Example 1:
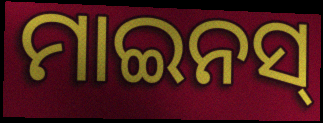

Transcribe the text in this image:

ମାଇନସ୍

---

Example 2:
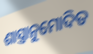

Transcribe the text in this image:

ଶାସ୍ତ୍ରାନୁମୋଦିତ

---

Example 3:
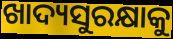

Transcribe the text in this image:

ଖାଦ୍ୟସୁରକ୍ଷାକୁ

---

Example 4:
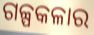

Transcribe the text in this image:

ଗଳ୍ପକଳାର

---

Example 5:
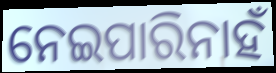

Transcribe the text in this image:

ନେଇପାରିନାହଁ